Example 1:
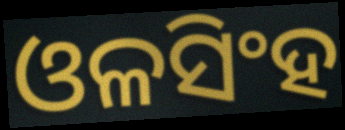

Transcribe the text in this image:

ଓଳସିଂହ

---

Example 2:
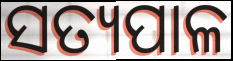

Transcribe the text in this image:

ସତ୍ୟପାଳ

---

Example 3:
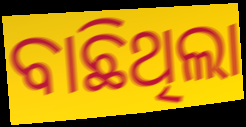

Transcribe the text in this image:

ବାଛିଥିଲା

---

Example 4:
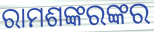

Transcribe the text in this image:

ରାମଶଙ୍କରଙ୍କର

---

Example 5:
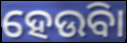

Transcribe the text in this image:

ହେଉିବା